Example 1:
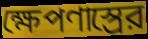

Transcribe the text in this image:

ক্ষেপণাস্ত্রের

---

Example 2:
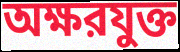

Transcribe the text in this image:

অক্ষরযুক্ত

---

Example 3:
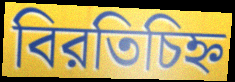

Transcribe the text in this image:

বিরতিচিহ্ন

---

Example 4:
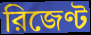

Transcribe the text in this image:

রিজেণ্ট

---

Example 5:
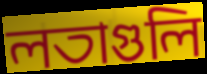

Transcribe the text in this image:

লতাগুলি